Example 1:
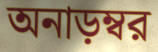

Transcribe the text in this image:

অনাড়ম্বর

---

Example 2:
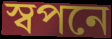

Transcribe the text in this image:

স্বপনে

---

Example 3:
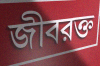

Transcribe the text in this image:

জীবরক্ত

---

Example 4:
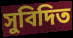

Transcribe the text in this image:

সুবিদিত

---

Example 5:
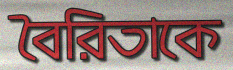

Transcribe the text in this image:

বৈরিতাকে